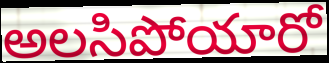
అలసిపోయారో